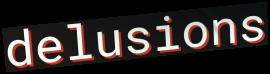
delusions